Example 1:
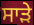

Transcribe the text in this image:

ਸਾੜੇ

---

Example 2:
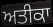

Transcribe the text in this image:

ਅਤੀਕਾ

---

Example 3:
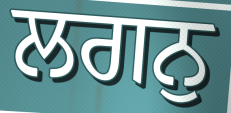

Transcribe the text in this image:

ਲਗਨੁ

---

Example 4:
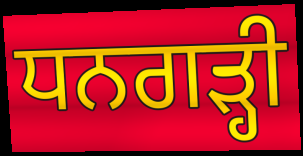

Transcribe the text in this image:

ਧਨਗੜ੍ਹੀ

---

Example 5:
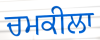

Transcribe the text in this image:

ਚਮਕੀਲਾ